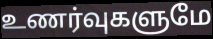
உணர்வுகளுமே